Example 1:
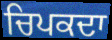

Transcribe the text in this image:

ਚਿਪਕਦਾ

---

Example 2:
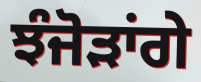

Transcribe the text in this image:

ਝੰਜੋੜਾਂਗੇ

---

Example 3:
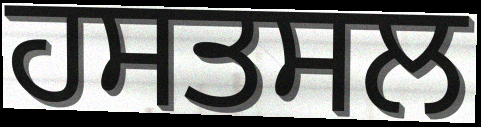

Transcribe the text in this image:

ਹਸਤਸਲ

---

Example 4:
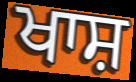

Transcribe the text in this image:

ਖਾਸ਼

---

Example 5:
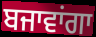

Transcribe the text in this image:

ਬਜਾਵਾਂਗਾ